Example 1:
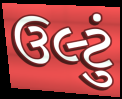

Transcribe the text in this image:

ઉલ્ટું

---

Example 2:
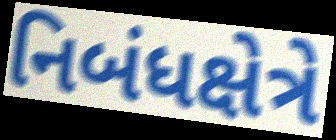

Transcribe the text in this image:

નિબંધક્ષેત્રે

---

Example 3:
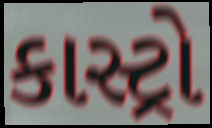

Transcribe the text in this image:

કાસ્ટ્રો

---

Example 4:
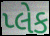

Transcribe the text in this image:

પ્લેક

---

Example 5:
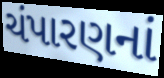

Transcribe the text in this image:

ચંપારણનાં